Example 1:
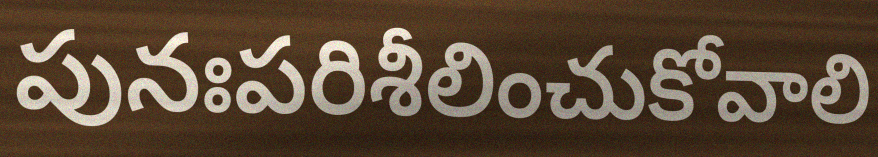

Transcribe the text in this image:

పునఃపరిశీలించుకోవాలి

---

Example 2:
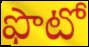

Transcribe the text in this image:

ఫొటో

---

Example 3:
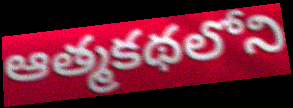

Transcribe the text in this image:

ఆత్మకథలోని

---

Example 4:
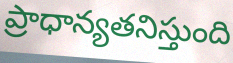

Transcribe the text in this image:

ప్రాధాన్యతనిస్తుంది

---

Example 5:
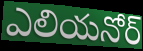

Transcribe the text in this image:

ఎలియనోర్